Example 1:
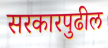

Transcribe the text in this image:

सरकारपुढील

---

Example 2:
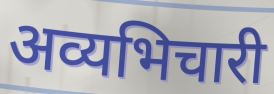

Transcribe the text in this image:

अव्यभिचारी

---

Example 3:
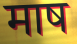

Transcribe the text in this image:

माष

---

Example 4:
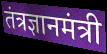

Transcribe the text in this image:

तंत्रज्ञानमंत्री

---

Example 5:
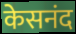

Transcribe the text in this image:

केसनंद